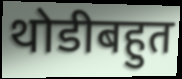
थोडीबहुत